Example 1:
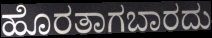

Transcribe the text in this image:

ಹೊರತಾಗಬಾರದು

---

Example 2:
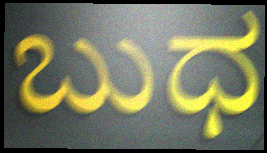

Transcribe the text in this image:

ಬುಧ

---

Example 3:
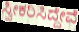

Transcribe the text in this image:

ಸ್ವೀಕರಿಸಿದ್ದೇವೆ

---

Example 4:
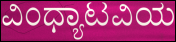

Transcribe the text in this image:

ವಿಂಧ್ಯಾಟವಿಯ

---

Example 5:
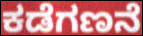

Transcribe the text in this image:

ಕಡೆಗಣನೆ